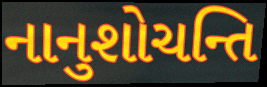
નાનુશોચન્તિ